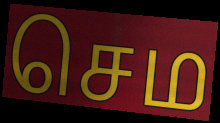
செம